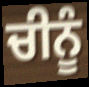
ਚੀਨੂੰ